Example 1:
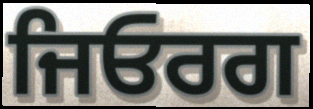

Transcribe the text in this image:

ਜਿਓਰਗ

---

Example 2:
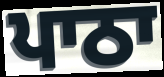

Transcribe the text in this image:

ਪਾਠਾ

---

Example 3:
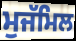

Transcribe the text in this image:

ਮੁਜੱਮਿਲ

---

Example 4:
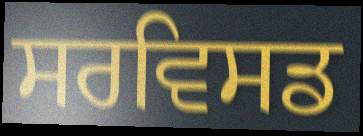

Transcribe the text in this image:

ਸਰਵਿਸਡ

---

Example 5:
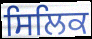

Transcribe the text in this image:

ਸਿਲਿਕ